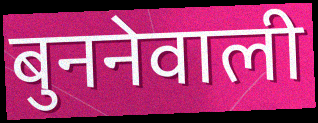
बुननेवाली